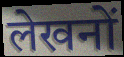
लेखनों